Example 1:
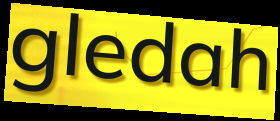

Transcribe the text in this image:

gledah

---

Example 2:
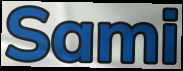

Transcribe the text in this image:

Sami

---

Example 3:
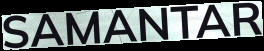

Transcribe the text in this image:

SAMANTAR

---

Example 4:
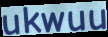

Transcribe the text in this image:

ukwuu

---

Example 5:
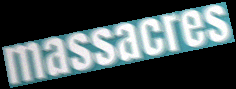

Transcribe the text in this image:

massacres